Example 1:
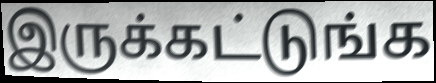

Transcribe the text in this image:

இருக்கட்டுங்க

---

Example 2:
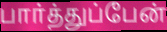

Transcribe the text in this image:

பார்த்துப்பேன்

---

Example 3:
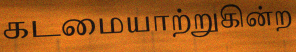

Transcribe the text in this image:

கடமையாற்றுகின்ற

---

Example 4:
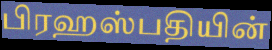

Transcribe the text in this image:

பிரஹஸ்பதியின்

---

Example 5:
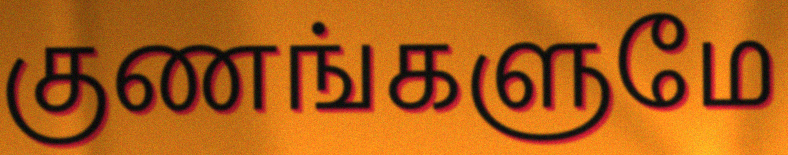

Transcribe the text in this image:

குணங்களுமே